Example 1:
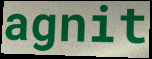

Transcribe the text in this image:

agnit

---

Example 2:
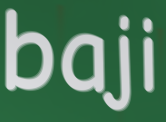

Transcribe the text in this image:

baji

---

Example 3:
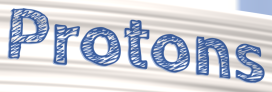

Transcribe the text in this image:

Protons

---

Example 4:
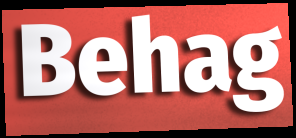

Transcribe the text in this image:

Behag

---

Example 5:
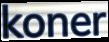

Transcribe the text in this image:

koner